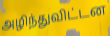
அழிந்துவிட்டன